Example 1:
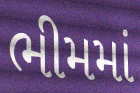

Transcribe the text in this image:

ભીમમાં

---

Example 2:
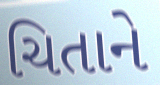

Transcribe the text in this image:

ચિતાને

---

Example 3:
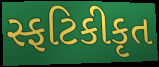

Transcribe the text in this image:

સ્ફટિકીકૃત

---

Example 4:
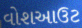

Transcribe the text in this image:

વોશઆઉટ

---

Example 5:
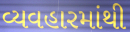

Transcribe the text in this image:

વ્યવહારમાંથી